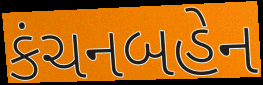
કંચનબહેન